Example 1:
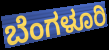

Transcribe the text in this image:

ಬೆಂಗಳೂರಿ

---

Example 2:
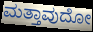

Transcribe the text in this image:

ಮತ್ತಾವುದೋ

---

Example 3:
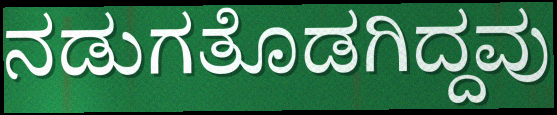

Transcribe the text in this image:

ನಡುಗತೊಡಗಿದ್ದವು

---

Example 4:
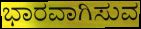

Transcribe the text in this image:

ಭಾರವಾಗಿಸುವ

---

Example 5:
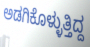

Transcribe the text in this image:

ಅಡಗಿಕೊಳ್ಳುತ್ತಿದ್ದ